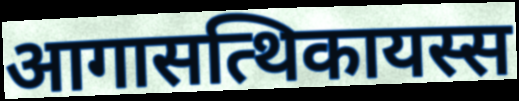
आगासत्थिकायस्स